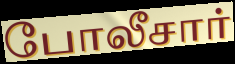
போலீசார்